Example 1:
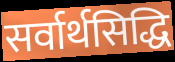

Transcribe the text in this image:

सर्वार्थसिद्धि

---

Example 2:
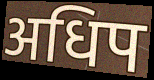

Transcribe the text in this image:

अधिप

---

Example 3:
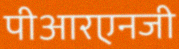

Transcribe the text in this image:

पीआरएनजी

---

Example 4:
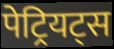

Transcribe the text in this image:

पेट्रियट्स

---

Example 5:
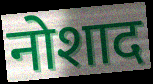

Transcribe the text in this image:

नोशाद